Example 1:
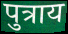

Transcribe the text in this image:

पुत्राय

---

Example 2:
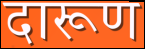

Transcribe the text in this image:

दारूण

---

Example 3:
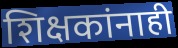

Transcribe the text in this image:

शिक्षकांनाही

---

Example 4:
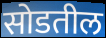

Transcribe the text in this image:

सोडतील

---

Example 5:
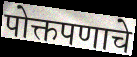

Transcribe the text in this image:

पोक्तपणाचे